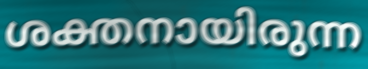
ശക്തനായിരുന്ന